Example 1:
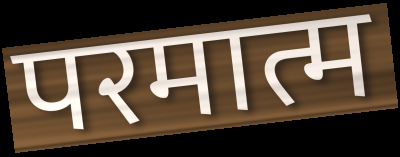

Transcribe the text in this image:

परमात्म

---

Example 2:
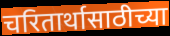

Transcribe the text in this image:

चरितार्थासाठीच्या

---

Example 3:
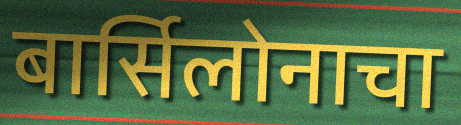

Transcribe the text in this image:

बार्सिलोनाचा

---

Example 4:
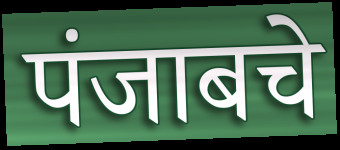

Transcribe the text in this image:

पंजाबचे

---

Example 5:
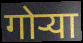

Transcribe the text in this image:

गोऱ्या